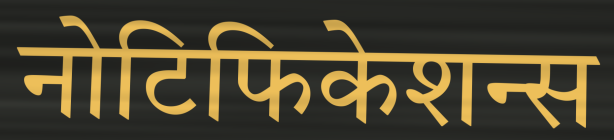
नोटिफिकेशन्स